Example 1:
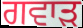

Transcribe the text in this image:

ਗਵਾੜ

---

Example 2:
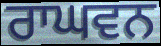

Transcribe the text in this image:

ਰਾਘਵਨ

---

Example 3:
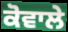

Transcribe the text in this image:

ਕੋਵਾਲੇ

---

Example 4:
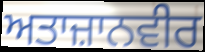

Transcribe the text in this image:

ਅਤਾਜ਼ਾਨਵੀਰ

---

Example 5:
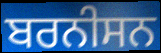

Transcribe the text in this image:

ਬਰਨੀਸਨ